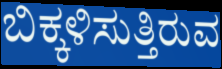
ಬಿಕ್ಕಳಿಸುತ್ತಿರುವ